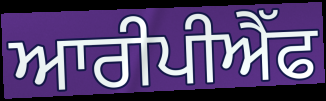
ਆਰੀਪੀਐੱਫ